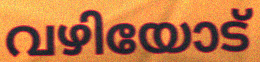
വഴിയോട്